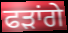
ਫੜਾਂਗੇ